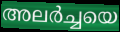
അലർച്ചയെ